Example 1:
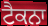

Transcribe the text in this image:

ਟੈਕਨਾ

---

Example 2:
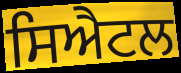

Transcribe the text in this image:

ਸਿਐਟਲ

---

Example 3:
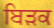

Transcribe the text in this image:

ਬਿੜਕ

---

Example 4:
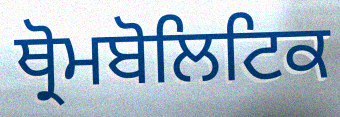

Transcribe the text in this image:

ਥ੍ਰੋਮਬੋਲਿਟਿਕ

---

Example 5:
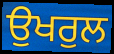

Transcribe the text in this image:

ਉਖਰੁਲ